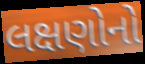
લક્ષણોનો